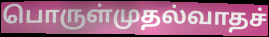
பொருள்முதல்வாதச்